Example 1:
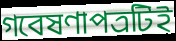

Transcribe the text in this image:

গবেষণাপত্রটিই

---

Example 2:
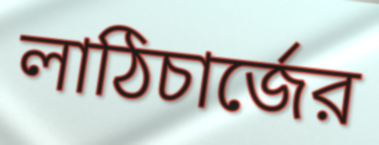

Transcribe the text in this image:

লাঠিচার্জের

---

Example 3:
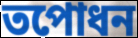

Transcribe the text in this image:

তপোধন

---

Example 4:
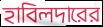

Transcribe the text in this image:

হাবিলদারের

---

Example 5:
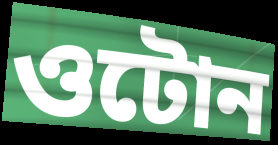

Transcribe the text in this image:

ওটোন